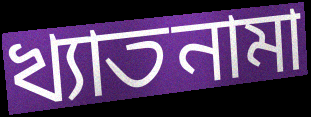
খ্যাতনামা